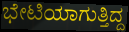
ಭೇಟಿಯಾಗುತ್ತಿದ್ದ